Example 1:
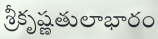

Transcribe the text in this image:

శ్రీకృష్ణతులాభారం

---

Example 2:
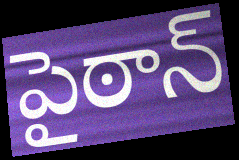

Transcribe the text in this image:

పైఠాన్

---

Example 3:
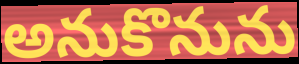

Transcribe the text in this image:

అనుకొనును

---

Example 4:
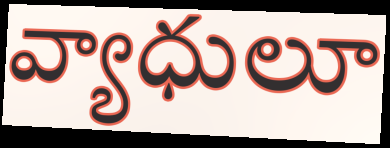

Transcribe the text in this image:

వ్యాధులూ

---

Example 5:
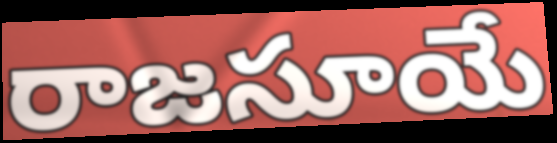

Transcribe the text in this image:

రాజసూయే